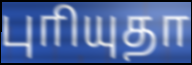
புரியுதா